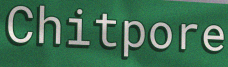
Chitpore